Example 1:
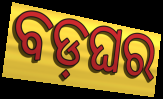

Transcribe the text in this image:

ବଡ଼ଘର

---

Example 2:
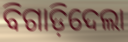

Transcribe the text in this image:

ବିଗାଡ଼ିଦେଲା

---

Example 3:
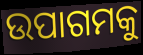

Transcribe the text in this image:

ଉପାଗମକୁ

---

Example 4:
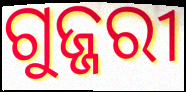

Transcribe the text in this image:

ଗୁଜ୍ଜରୀ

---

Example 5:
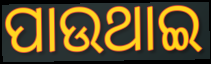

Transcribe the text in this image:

ପାଉଥାଇ